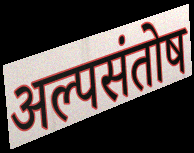
अल्पसंतोष